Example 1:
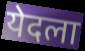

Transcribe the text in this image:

येदला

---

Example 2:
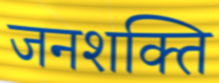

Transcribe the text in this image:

जनशक्ति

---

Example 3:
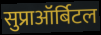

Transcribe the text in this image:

सुप्राऑर्बिटल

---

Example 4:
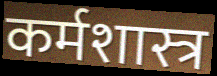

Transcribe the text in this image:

कर्मशास्त्र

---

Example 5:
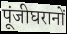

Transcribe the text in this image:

पूंजीघरानों